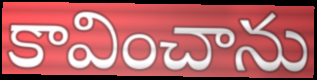
కావించాను